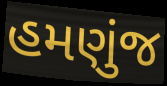
હમણુંજ